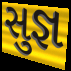
સુજ્ઞ